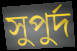
সুপুর্দ